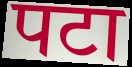
पटा